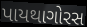
પાયથાગોરસ